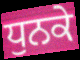
ਧੁਨਕੇ